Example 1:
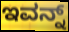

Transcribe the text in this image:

ಇವನ್ನ್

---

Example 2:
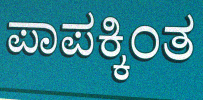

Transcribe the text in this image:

ಪಾಪಕ್ಕಿಂತ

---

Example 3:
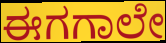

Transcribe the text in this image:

ಈಗಗಾಲೇ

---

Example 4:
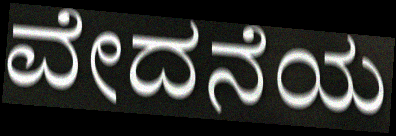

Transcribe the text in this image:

ವೇದನೆಯ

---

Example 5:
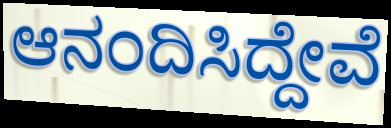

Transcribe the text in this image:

ಆನಂದಿಸಿದ್ದೇವೆ